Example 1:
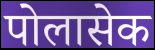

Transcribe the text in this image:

पोलासेक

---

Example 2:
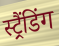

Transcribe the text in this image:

स्ट्रैंडिंग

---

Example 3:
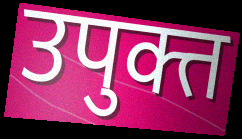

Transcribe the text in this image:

उपुक्त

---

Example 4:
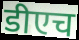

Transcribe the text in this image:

डीएच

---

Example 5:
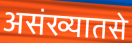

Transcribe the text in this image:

असंख्यातसे